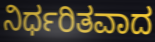
ನಿರ್ಧರಿತವಾದ